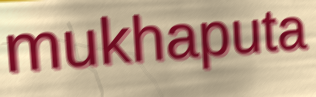
mukhaputa